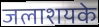
जलाशयके